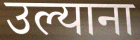
उल्याना